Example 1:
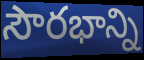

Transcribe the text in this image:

సౌరభాన్ని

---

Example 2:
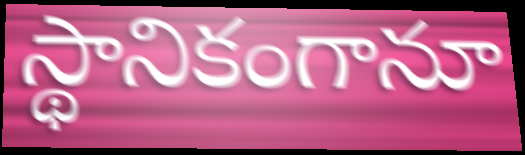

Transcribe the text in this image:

స్థానికంగానూ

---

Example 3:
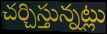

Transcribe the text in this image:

చర్చిస్తున్నట్లు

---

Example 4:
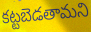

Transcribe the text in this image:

కట్టబెడతామని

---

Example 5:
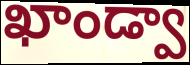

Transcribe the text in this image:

ఖాండ్వా